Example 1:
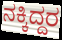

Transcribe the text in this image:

ನಕ್ಕಿದ್ದರ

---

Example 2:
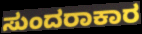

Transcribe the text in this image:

ಸುಂದರಾಕಾರ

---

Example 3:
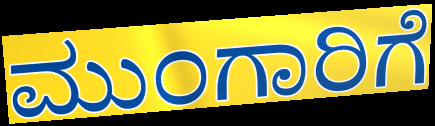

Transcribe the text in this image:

ಮುಂಗಾರಿಗೆ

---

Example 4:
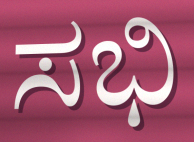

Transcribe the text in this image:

ಸಭಿ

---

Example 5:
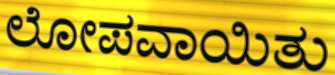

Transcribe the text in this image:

ಲೋಪವಾಯಿತು